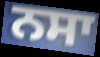
ਨਸਾ